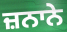
ਜ਼ਨਾਨੇ